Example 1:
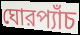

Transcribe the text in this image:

ঘোরপ্যাঁচ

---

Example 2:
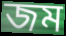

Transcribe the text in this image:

জম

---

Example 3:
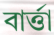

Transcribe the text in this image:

বার্ত্তা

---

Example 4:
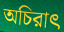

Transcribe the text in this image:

অচিরাৎ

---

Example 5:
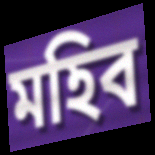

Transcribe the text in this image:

মহিব